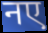
नए